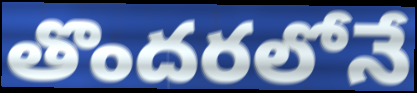
తొందరలోనే